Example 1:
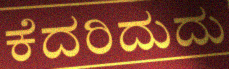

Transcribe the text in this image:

ಕೆದರಿದುದು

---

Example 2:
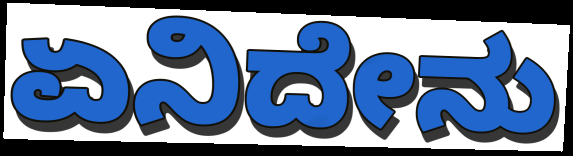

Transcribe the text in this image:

ಏನಿದೇನು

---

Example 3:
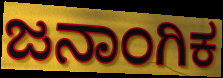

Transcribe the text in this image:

ಜನಾಂಗಿಕ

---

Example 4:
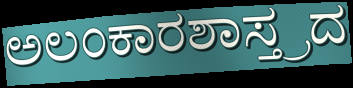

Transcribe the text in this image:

ಅಲಂಕಾರಶಾಸ್ತ್ರದ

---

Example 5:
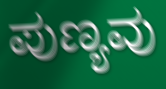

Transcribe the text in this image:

ಪುಣ್ಯವು